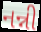
નન્ની